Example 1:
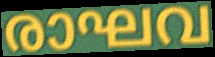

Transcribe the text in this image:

രാഘവ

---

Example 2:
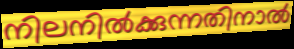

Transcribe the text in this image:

നിലനിൽക്കുന്നതിനാൽ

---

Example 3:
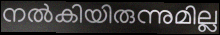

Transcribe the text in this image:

നൽകിയിരുന്നുമില്ല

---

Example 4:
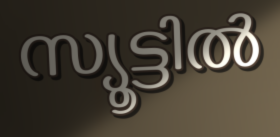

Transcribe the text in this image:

സ്യൂട്ടിൽ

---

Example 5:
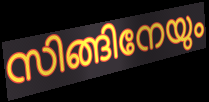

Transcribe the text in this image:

സിങ്ങിനേയും